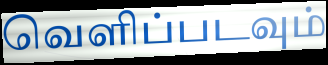
வெளிப்படவும்